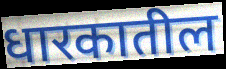
धारकातील